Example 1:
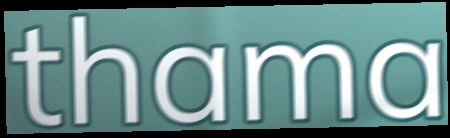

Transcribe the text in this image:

thama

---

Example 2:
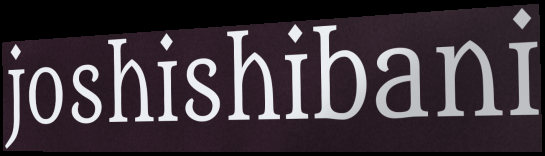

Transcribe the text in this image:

joshishibani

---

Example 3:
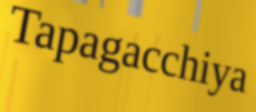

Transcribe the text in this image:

Tapagacchiya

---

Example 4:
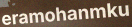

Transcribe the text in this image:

eramohanmku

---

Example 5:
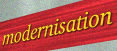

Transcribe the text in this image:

modernisation